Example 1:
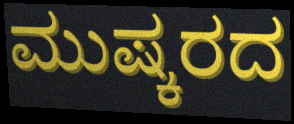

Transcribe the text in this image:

ಮುಷ್ಕರದ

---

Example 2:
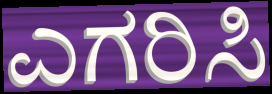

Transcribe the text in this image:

ಎಗರಿಸಿ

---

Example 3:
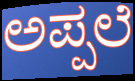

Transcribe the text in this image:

ಅಪ್ಪಲೆ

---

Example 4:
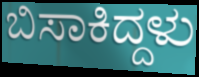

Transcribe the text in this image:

ಬಿಸಾಕಿದ್ದಳು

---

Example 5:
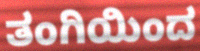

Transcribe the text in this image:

ತಂಗಿಯಿಂದ